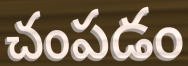
చంపడం